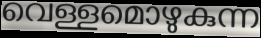
വെള്ളമൊഴുകുന്ന